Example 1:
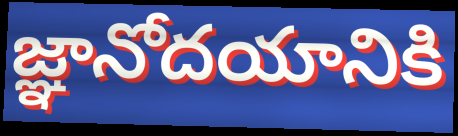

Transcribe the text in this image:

జ్ఞానోదయానికి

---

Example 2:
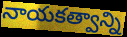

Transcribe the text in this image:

నాయకత్వాన్ని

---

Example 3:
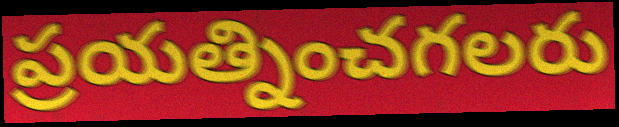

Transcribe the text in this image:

ప్రయత్నించగలరు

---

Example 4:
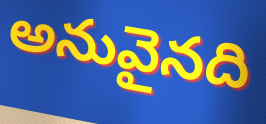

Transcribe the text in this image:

అనువైనది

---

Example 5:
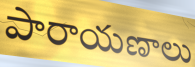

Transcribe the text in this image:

పారాయణాలు